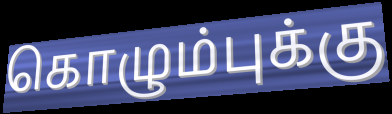
கொழும்புக்கு